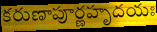
కరుణాపూర్ణహృదయః